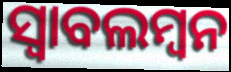
ସ୍ୱାବଲମ୍ବନ